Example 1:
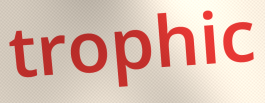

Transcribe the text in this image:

trophic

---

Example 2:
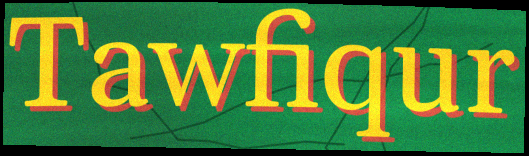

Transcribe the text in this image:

Tawfiqur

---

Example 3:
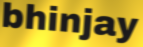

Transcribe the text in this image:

bhinjay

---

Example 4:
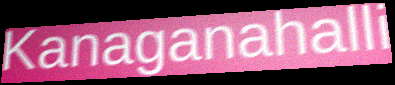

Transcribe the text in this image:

Kanaganahalli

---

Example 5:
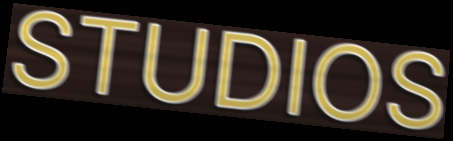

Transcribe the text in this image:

STUDIOS